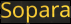
Sopara